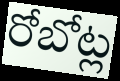
రోబోట్ల